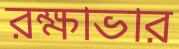
রক্ষাভার